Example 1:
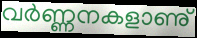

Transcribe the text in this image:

വർണ്ണനകളാണു്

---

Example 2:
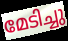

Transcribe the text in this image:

മേടിച്ചു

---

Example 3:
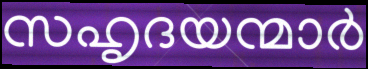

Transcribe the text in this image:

സഹൃദയന്മാർ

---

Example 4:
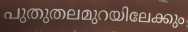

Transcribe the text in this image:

പുതുതലമുറയിലേക്കും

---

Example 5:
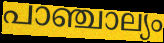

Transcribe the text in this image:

പാഞ്ചാല്യം